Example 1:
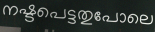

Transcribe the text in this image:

നഷ്ടപെട്ടതുപോലെ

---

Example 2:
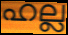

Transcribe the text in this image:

ഹല്ല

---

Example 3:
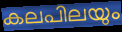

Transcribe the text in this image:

കലപിലയും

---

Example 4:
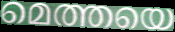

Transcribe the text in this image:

മെത്തയെ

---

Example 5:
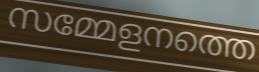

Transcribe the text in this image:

സമ്മേളനത്തെ